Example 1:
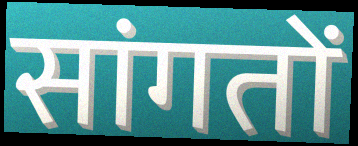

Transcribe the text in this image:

सांगतों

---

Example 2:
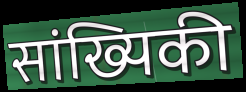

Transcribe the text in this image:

सांख्यिकी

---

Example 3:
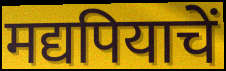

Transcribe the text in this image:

मद्यपियाचें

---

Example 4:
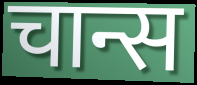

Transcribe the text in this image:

चान्स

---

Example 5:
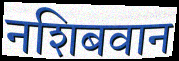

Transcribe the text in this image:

नशिबवान